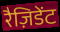
रैज़िडेंट